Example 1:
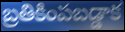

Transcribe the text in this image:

బ్రతికింపబడ్డాక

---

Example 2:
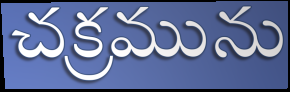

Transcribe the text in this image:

చక్రమును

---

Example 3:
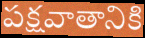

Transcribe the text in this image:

పక్షవాతానికి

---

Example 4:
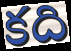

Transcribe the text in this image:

కది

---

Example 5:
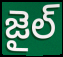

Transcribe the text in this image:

జైల్